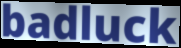
badluck